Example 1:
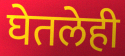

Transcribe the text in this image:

घेतलेही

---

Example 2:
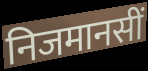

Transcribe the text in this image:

निजमानसीं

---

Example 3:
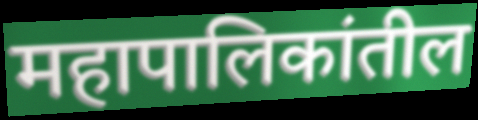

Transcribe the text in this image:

महापालिकांतील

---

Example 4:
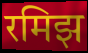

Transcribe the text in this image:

रमिझ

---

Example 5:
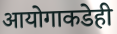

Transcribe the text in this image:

आयोगाकडेही